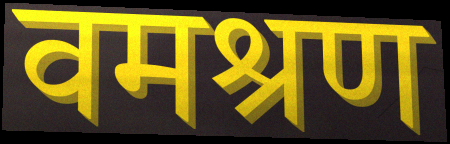
वमश्रण